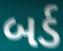
બર્ડ